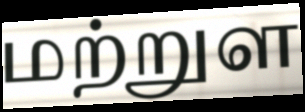
மற்றுள